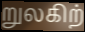
றுலகிற்